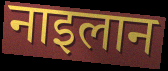
नाइलान